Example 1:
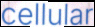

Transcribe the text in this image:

cellular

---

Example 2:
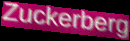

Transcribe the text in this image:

Zuckerberg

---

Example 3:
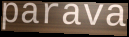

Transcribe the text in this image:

parava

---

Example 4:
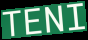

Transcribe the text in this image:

TENI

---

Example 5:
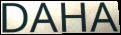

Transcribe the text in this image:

DAHA